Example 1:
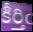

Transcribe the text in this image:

కీర్తిఁ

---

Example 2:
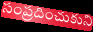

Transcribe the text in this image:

సంప్రదించుకుని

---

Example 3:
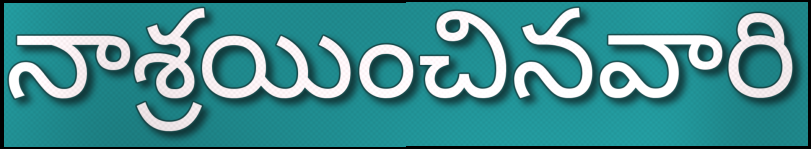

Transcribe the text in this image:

నాశ్రయించినవారి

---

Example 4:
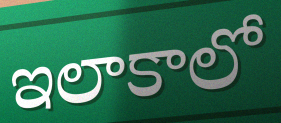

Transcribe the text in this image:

ఇలాకాలో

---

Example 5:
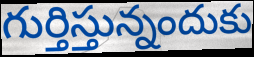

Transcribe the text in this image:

గుర్తిస్తున్నందుకు